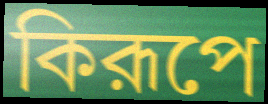
কিরূপে